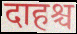
दाहश्च